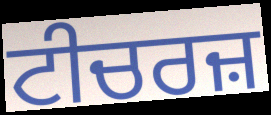
ਟੀਚਰਜ਼